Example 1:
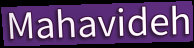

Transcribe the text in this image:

Mahavideh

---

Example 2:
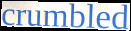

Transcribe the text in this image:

crumbled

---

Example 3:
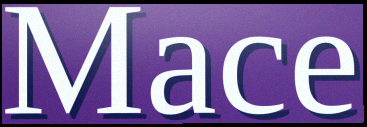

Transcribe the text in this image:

Mace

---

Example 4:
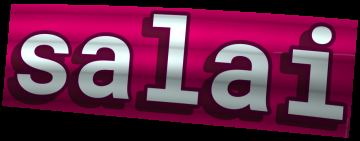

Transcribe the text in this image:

salai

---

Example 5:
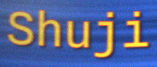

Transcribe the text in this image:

Shuji